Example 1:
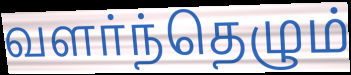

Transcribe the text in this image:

வளர்ந்தெழும்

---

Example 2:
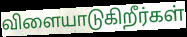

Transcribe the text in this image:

விளையாடுகிறீர்கள்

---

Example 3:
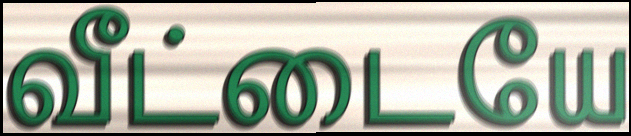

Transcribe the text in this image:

வீட்டையே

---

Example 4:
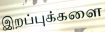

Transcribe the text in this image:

இறப்புக்களை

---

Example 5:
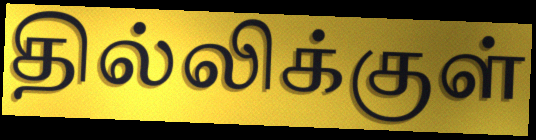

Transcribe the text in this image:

தில்லிக்குள்